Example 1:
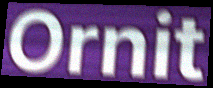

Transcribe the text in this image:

Ornit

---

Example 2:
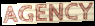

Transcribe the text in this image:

AGENCY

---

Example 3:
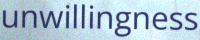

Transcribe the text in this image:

unwillingness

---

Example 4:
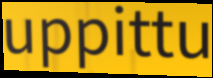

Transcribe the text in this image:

uppittu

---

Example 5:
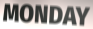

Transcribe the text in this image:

MONDAY